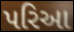
પરિઆ